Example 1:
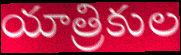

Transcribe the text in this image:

యాత్రికుల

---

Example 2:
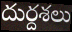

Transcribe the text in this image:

దుర్దశలు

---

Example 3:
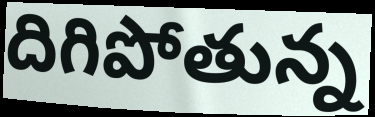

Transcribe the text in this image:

దిగిపోతున్న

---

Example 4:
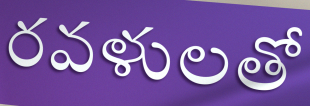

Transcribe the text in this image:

రవళులతో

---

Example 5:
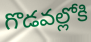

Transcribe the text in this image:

గొడవల్లోకి